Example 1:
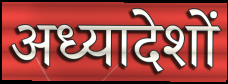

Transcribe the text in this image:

अध्यादेशों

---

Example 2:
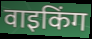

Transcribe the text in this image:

वाइकिंग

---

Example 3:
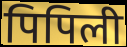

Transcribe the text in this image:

पिपिली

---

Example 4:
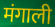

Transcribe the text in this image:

मंगाली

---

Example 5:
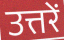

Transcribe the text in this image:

उत्तरें